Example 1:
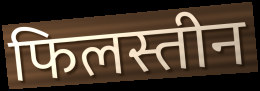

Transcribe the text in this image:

फिलस्तीन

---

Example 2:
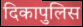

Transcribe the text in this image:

दिकापुलिस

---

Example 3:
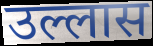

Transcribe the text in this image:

उल्‍लास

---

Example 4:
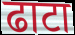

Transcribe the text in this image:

ढाटा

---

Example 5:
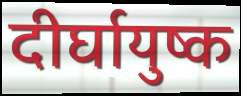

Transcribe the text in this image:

दीर्घायुष्क